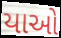
યાઓ